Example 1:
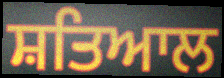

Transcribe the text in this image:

ਸ਼ਤਿਆਲ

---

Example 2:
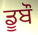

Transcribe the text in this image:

ਡੂਬੌ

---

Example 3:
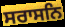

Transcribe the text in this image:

ਸਰਾਸਨਿ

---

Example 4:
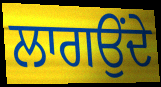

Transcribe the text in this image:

ਲਾਗਉਂਦੇ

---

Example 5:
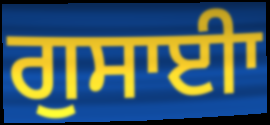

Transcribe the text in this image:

ਗੁਸਾਈਾ